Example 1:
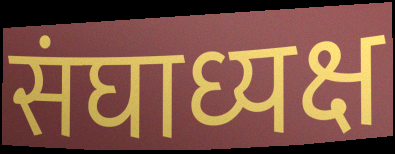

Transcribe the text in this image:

संघाध्यक्ष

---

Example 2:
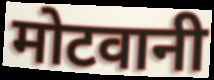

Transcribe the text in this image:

मोटवानी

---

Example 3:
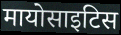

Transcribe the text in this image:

मायोसाइटिस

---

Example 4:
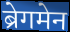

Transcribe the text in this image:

ब्रेगमेन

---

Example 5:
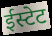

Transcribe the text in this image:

ईस्टेट